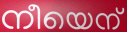
നീയെന്